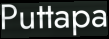
Puttapa